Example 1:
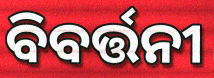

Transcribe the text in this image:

ବିବର୍ତ୍ତନୀ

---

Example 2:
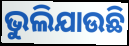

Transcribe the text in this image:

ଭୁଲିଯାଉଛି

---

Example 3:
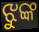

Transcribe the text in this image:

ଝୁଙ୍କ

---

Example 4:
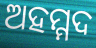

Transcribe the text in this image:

ଅହମ୍ମଦ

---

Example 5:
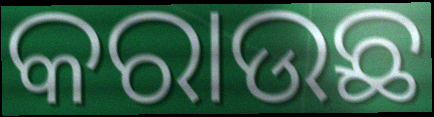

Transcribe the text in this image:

କରାଉଛ